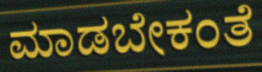
ಮಾಡಬೇಕಂತೆ